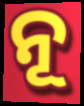
ନୂ